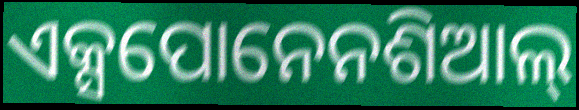
ଏକ୍ସପୋନେନଶିଆଲ୍